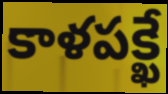
కాళపక్ఖే